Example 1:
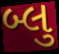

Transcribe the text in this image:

બ્લુ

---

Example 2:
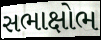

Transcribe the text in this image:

સભાક્ષોભ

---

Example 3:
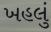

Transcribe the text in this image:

ખહલું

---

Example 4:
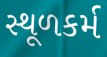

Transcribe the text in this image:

સ્થૂળકર્મ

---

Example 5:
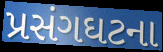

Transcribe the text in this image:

પ્રસંગઘટના